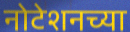
नोटेशनच्या